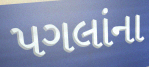
પગલાંના